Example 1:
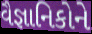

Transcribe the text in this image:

વૈજ્ઞાનિકોને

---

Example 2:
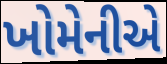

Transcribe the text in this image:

ખોમેનીએ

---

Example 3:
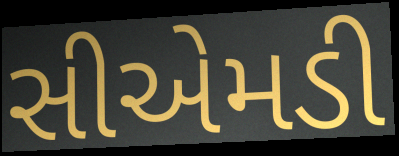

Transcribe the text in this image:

સીએમડી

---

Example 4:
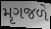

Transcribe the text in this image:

મૃગજળે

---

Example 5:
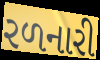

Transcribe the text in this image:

રળનારી